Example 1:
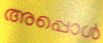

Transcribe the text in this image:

അപ്പൊൾ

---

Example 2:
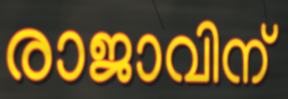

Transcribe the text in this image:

രാജാവിന്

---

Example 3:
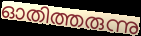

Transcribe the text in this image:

ഓതിത്തരുന്നു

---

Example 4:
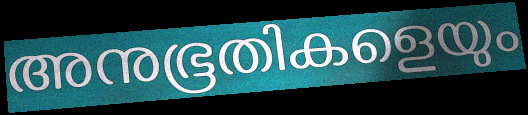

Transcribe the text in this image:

അനുഭൂതികളെയും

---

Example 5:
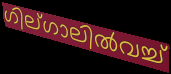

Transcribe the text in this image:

ഗില്ഗാലിൽവച്ച്